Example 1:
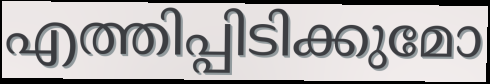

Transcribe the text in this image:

എത്തിപ്പിടിക്കുമോ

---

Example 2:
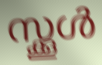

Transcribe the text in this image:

സ്ക്കൂൾ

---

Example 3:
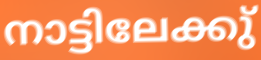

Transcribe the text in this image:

നാട്ടിലേക്കു്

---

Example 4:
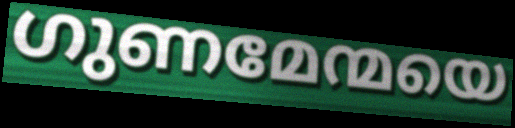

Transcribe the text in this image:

ഗുണമേന്മയെ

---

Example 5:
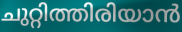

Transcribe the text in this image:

ചുറ്റിത്തിരിയാൻ